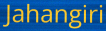
Jahangiri